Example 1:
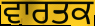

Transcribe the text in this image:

ਵਾਰਤਕ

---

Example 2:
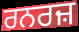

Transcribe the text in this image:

ਰਨਰਜ਼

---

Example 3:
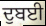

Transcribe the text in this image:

ਦੁਬਈ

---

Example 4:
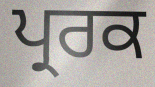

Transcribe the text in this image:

ਪ੍ਰਰਕ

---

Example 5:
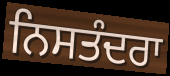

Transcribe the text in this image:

ਨਿਸਤੰਦਰਾ